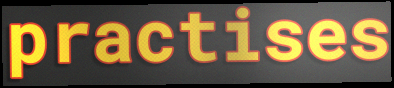
practises